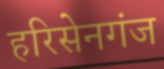
हरिसेनगंज